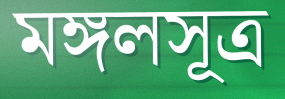
মঙ্গলসূত্র